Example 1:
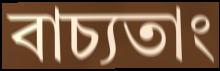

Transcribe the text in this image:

বাচ্যতাং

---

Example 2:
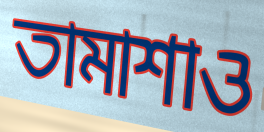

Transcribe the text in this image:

তামাশাও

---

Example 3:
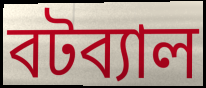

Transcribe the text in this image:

বটব্যাল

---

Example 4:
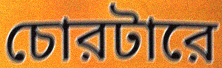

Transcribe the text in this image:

চোরটারে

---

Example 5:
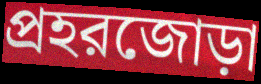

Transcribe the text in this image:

প্রহরজোড়া